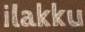
ilakku